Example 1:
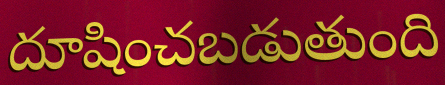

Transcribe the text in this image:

దూషించబడుతుంది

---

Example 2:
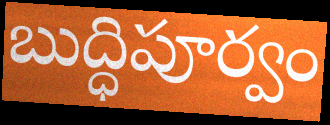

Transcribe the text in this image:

బుద్ధిపూర్వం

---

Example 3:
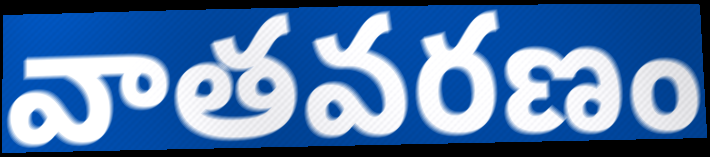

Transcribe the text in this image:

వాతవరణం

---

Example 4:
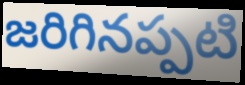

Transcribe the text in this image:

జరిగినప్పటి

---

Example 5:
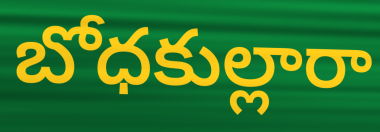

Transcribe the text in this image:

బోధకుల్లారా